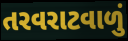
તરવરાટવાળું